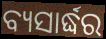
ବ୍ୟସାର୍ଦ୍ଧର